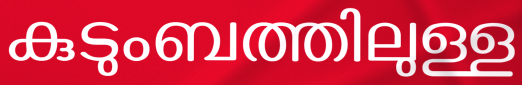
കുടുംബത്തിലുള്ള